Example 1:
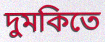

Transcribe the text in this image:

দুমকিতে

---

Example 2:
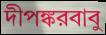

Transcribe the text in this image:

দীপঙ্করবাবু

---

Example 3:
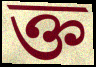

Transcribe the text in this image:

ক্ত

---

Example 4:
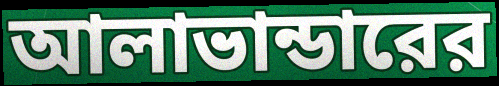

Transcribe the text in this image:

আলাভান্ডারের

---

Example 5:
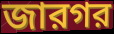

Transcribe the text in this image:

জারগর